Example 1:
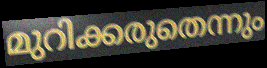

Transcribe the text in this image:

മുറിക്കരുതെന്നും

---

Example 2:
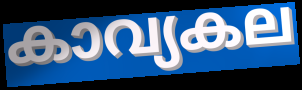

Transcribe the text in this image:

കാവ്യകല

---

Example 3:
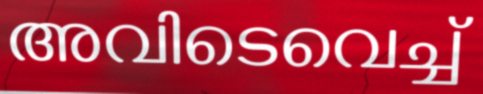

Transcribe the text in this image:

അവിടെവെച്ച്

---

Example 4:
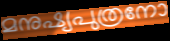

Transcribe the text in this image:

മനുഷ്യപുത്രനോ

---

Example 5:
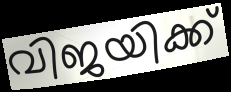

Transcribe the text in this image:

വിജയിക്ക്